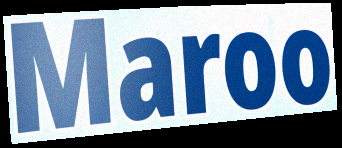
Maroo